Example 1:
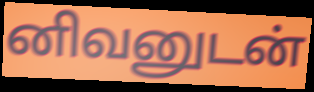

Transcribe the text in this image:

னிவனுடன்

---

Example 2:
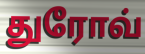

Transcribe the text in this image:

துரோவ்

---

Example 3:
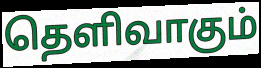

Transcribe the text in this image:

தெளிவாகும்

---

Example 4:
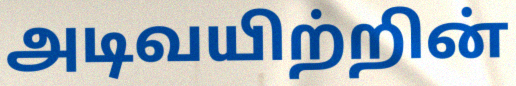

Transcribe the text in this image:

அடிவயிற்றின்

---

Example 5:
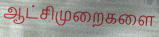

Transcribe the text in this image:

ஆட்சிமுறைகளை